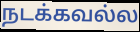
நடக்கவல்ல